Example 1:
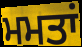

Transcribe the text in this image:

ਮਮਤਾਂ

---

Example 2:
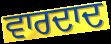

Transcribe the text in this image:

ਵਾਰਦਾਦ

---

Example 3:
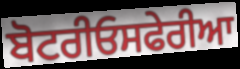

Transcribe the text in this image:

ਬੋਟਰੀਓਸਫੇਰੀਆ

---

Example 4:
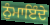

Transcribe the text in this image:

ਨੁੰਮਾਇੰਦੇ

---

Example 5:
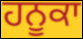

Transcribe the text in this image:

ਹਨੂਕਾ